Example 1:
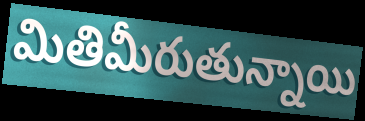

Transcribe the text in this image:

మితిమీరుతున్నాయి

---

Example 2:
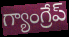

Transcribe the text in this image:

గ్యాంగ్రేప్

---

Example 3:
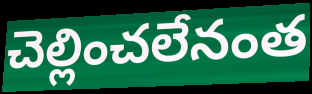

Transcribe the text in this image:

చెల్లించలేనంత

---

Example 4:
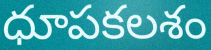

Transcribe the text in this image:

ధూపకలశం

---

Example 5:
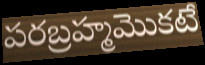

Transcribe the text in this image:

పరబ్రహ్మమొకటే